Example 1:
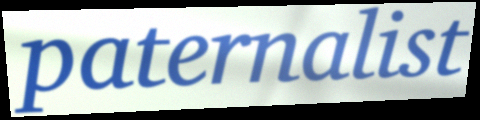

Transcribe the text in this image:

paternalist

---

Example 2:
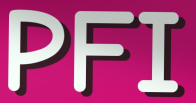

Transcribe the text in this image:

PFI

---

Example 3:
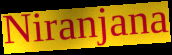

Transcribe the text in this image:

Niranjana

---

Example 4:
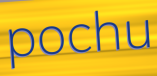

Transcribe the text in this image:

pochu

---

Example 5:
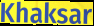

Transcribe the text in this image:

Khaksar